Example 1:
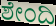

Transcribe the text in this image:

ಶೇಂದಿ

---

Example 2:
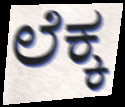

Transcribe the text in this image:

ಲೆಕ್ಕ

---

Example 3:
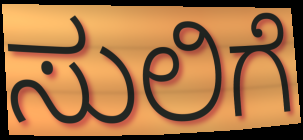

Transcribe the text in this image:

ಸುಲಿಗೆ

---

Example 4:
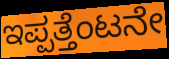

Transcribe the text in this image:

ಇಪ್ಪತ್ತೆಂಟನೇ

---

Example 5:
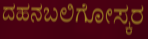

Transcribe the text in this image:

ದಹನಬಲಿಗೋಸ್ಕರ